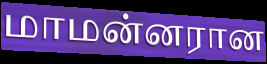
மாமன்னரான